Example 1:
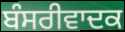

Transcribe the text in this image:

ਬੰਸਰੀਵਾਦਕ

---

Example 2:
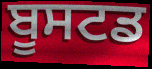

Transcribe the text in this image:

ਬੂਸਟਡ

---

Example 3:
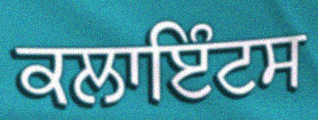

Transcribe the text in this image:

ਕਲਾਇੰਟਸ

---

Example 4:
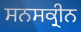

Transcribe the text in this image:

ਸਨਸਕ੍ਰੀਨ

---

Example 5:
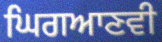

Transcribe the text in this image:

ਘਿਗਆਣਵੀ